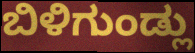
ಬಿಳಿಗುಂಡ್ಲು